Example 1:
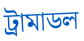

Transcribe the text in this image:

ট্রামাডল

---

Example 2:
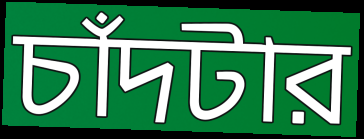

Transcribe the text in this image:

চাঁদটার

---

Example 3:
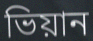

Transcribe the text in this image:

ভিয়ান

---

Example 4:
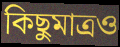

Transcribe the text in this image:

কিছুমাত্রও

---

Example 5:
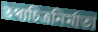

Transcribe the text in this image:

তথ্যচিত্রনির্মাতা